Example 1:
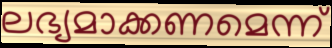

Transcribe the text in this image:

ലഭ്യമാക്കണമെന്ന്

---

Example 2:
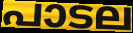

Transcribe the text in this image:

പാടല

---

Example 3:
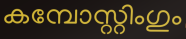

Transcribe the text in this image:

കമ്പോസ്റ്റിംഗും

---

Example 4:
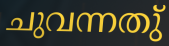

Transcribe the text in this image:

ചുവന്നതു്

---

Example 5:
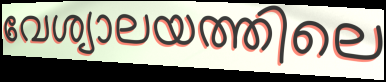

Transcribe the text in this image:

വേശ്യാലയത്തിലെ